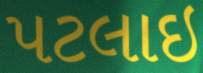
પટલાઇ